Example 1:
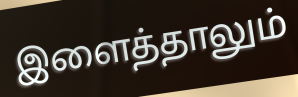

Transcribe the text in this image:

இளைத்தாலும்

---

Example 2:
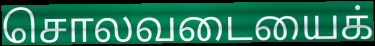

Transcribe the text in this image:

சொலவடையைக்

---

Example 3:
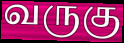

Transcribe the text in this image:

வருகு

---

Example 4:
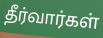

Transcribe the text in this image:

தீர்வார்கள்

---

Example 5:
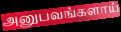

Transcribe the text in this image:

அனுபவங்களாய்